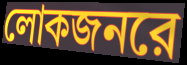
লোকজনরে